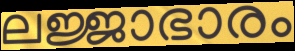
ലജ്ജാഭാരം